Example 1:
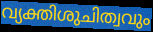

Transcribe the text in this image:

വ്യക്തിശുചിത്വവും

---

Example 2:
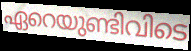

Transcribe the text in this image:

ഏറെയുണ്ടിവിടെ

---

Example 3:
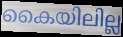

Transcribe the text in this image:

കൈയിലില്ല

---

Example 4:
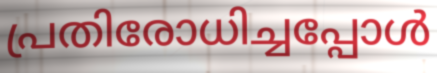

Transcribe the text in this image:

പ്രതിരോധിച്ചപ്പോൾ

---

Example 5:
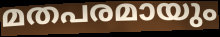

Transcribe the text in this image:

മതപരമായും